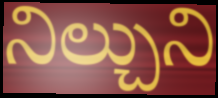
నిల్చుని